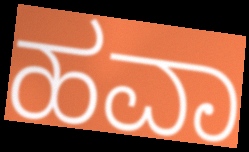
ಹವಾ